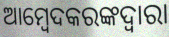
ଆମ୍ବେଦକରଙ୍କଦ୍ୱାରା